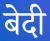
बेदी